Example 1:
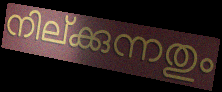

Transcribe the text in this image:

നില്ക്കുന്നതും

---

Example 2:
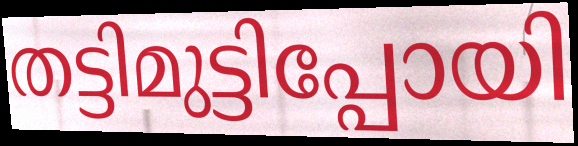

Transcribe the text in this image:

തട്ടിമുട്ടിപ്പോയി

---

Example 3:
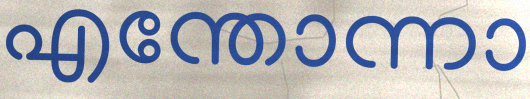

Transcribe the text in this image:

എന്തോന്നാ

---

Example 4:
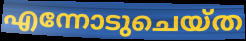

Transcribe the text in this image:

എന്നോടുചെയ്ത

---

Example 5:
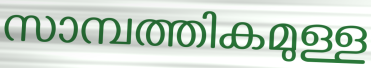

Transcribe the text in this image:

സാമ്പത്തികമുള്ള